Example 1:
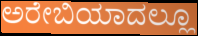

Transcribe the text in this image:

ಅರೇಬಿಯಾದಲ್ಲೂ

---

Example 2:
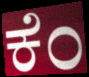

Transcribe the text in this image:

ಕೆಂ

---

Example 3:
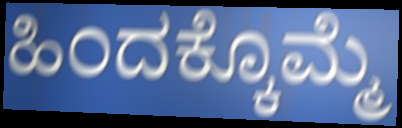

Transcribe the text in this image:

ಹಿಂದಕ್ಕೊಮ್ಮೆ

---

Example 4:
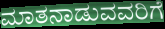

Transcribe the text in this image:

ಮಾತನಾಡುವವರಿಗೆ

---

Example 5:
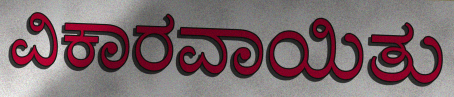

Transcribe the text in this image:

ವಿಕಾರವಾಯಿತು